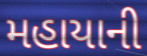
મહાયાની